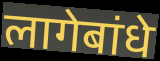
लागेबांधे